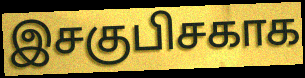
இசகுபிசகாக